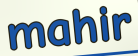
mahir